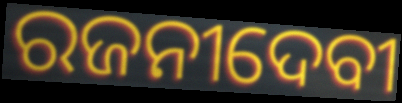
ରଜନୀଦେବୀ